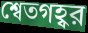
শ্বেতগহ্বর